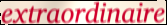
extraordinaire